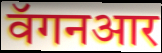
वॅगनआर